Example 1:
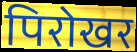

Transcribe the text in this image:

पिरोखर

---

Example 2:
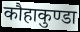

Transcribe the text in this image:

कौहाकुण्डा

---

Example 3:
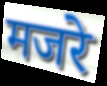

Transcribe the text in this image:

मजरे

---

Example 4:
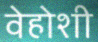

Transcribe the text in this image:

वेहोशी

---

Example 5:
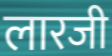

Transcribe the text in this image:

लारजी